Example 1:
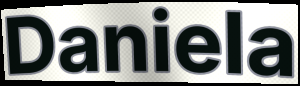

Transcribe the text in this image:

Daniela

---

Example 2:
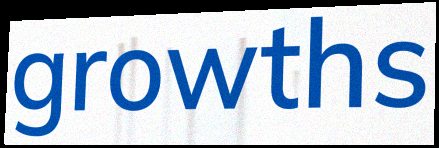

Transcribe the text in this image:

growths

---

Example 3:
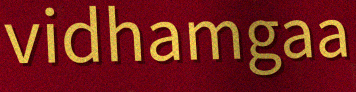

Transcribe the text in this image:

vidhamgaa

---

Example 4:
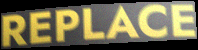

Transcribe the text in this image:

REPLACE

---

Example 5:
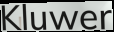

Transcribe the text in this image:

Kluwer